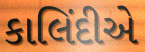
કાલિંદીએ